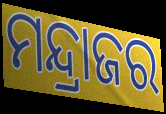
ମନ୍ଦ୍ରାଜର